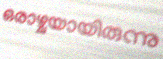
ഒരാഴ്ചയായിരുന്നു